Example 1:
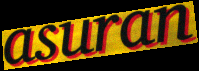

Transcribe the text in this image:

asuran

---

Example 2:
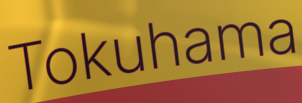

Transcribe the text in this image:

Tokuhama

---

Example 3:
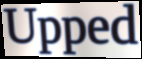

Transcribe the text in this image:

Upped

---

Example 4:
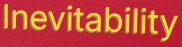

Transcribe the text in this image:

Inevitability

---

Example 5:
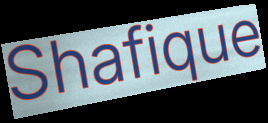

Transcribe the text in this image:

Shafique